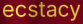
ecstacy